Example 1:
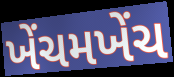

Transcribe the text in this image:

ખેંચમખેંચ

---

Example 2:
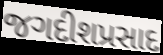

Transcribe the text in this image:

જગદીશપ્રસાદ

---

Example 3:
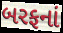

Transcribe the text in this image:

બરફનાં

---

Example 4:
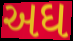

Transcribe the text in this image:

અઘ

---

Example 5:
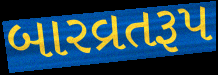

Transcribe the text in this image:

બારવ્રતરૂપ